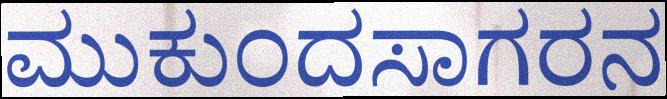
ಮುಕುಂದಸಾಗರನ